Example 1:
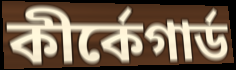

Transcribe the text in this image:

কীর্কেগার্ড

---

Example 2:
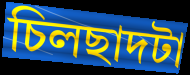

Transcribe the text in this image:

চিলছাদটা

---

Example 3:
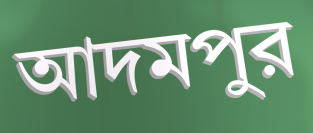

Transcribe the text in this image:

আদমপুর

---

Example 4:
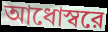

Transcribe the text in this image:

আধোস্বরে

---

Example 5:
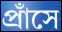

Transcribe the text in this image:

প্রাঁসে